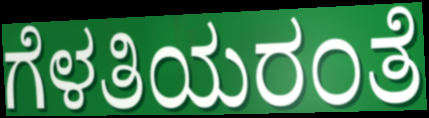
ಗೆಳತಿಯರಂತೆ